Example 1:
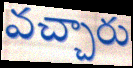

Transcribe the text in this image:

వచ్చారు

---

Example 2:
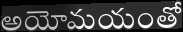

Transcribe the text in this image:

అయోమయంతో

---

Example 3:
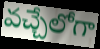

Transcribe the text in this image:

వచ్చేలోగా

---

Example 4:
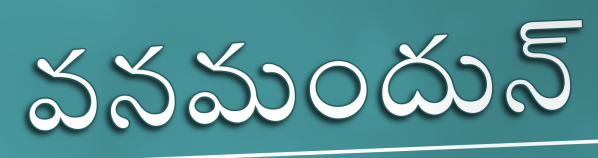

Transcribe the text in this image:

వనమందున్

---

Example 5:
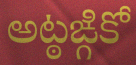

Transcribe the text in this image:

అట్ఠఙ్గికో